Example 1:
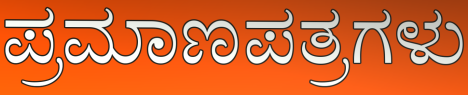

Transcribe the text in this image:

ಪ್ರಮಾಣಪತ್ರಗಳು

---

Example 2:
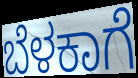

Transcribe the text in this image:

ಬೆಳಕಾಗೆ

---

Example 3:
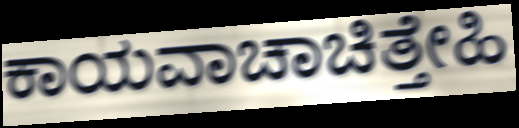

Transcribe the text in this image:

ಕಾಯವಾಚಾಚಿತ್ತೇಹಿ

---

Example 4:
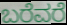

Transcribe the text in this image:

ಬರೆವರೆ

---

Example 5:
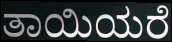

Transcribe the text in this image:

ತಾಯಿಯರೆ